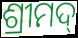
ଶ୍ରୀମଦ୍